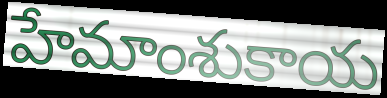
హేమాంశుకాయ